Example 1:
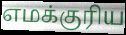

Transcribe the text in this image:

எமக்குரிய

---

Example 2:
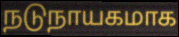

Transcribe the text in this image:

நடுநாயகமாக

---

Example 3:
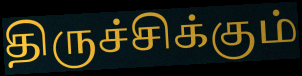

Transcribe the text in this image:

திருச்சிக்கும்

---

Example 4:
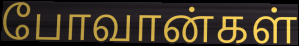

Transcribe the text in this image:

போவான்கள்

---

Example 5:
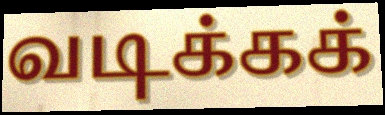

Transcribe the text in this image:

வடிக்கக்